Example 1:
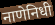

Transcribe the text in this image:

नाणेनिधी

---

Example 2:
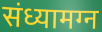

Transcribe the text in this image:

संध्यामग्न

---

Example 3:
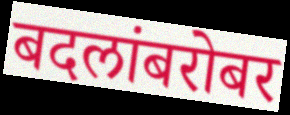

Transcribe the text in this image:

बदलांबरोबर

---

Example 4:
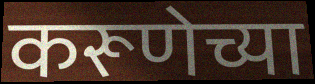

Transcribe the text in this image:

करूणेच्या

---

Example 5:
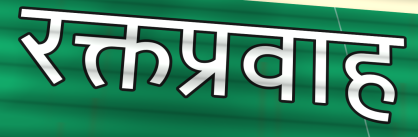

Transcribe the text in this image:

रक्तप्रवाह